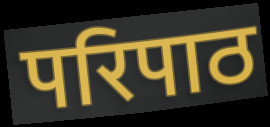
परिपाठ